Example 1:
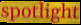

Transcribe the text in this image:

spotlight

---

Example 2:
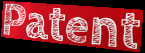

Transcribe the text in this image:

Patent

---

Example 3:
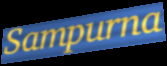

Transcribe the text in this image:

Sampurna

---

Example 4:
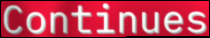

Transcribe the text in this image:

Continues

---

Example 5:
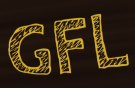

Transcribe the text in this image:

GFL